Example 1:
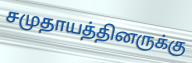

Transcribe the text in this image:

சமுதாயத்தினருக்கு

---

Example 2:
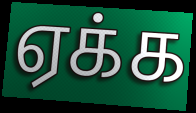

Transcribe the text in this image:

ஏக்க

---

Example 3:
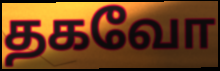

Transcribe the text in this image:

தகவோ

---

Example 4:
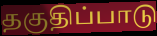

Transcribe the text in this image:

தகுதிப்பாடு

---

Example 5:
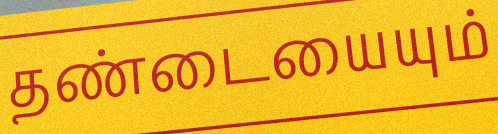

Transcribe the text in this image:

தண்டையையும்